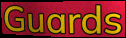
Guards